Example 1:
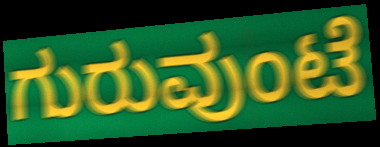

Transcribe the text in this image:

ಗುರುವುಂಟೆ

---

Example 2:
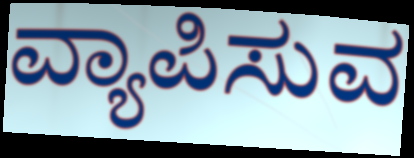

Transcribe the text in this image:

ವ್ಯಾಪಿಸುವ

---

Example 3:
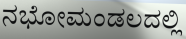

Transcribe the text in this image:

ನಭೋಮಂಡಲದಲ್ಲಿ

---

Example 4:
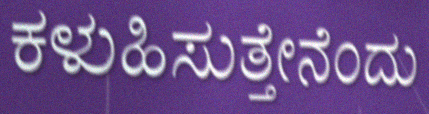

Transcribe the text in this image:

ಕಳುಹಿಸುತ್ತೇನೆಂದು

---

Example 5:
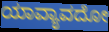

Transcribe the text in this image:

ಯಾವ್ಯಾವದೋ